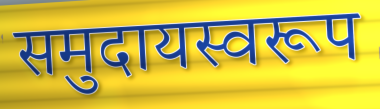
समुदायस्वरूप